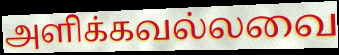
அளிக்கவல்லவை